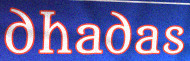
dhadas